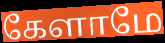
கேளாமே